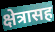
क्षेत्रासह